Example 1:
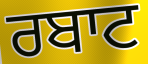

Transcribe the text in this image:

ਰਬਾਟ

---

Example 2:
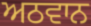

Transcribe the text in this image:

ਅਠਵਾਨ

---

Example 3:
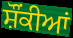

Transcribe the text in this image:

ਸ਼ੌਂਕੀਆਂ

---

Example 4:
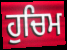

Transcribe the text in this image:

ਹੁਚਿਮ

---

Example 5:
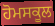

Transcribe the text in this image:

ਹੋਮਸਕੂਲ